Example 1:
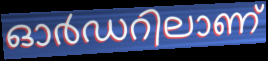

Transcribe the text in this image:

ഓർഡറിലാണ്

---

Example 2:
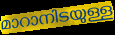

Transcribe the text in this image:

മാറാനിടയുള്ള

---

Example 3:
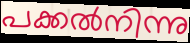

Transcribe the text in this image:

പക്കൽനിന്നു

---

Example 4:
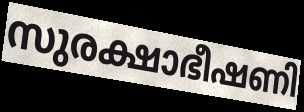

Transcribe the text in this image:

സുരക്ഷാഭീഷണി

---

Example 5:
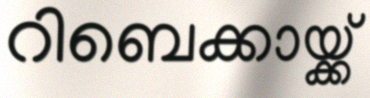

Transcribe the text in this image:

റിബെക്കായ്ക്ക്